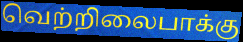
வெற்றிலைபாக்கு